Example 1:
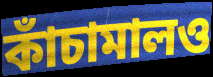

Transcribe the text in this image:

কাঁচামালও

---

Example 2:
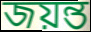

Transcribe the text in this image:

জয়ন্ত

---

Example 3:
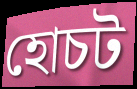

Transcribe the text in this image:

হোচট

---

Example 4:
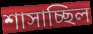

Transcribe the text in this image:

শাসাচ্ছিল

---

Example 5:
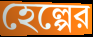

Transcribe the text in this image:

হেল্পের